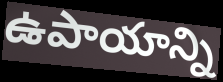
ఉపాయాన్ని